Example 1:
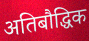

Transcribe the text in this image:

अतिबौद्धिक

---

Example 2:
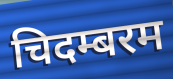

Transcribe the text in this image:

चिदम्बरम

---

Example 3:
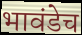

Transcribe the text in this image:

भावंडेच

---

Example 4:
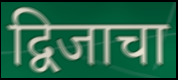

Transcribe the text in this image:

द्विजाचा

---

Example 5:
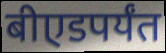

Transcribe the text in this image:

बीएडपर्यंत